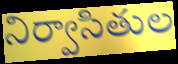
నిర్వాసితుల